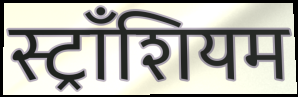
स्ट्राँशियम